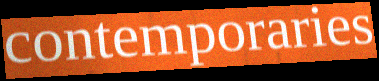
contemporaries